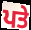
ਪਤੇ